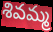
శివమ్మ